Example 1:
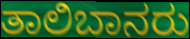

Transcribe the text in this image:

ತಾಲಿಬಾನರು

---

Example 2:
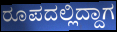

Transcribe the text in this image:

ರೂಪದಲ್ಲಿದ್ದಾಗ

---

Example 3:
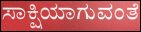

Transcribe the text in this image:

ಸಾಕ್ಷಿಯಾಗುವಂತೆ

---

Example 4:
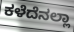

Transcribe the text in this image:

ಕಳೆದೆನಲ್ಲಾ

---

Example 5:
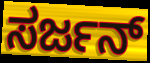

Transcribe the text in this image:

ಸರ್ಜನ್